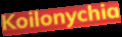
Koilonychia